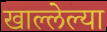
खाल्लेल्या